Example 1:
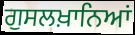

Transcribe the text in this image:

ਗੁਸਲਖ਼ਾਨਿਆਂ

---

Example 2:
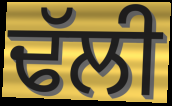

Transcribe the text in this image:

ਢੱਲੀ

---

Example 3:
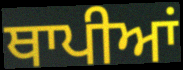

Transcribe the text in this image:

ਥਾਪੀਆਂ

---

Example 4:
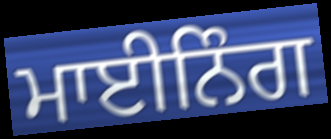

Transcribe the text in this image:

ਮਾਈਨਿੰਗ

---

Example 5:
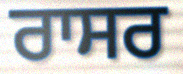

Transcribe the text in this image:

ਰਾਸਰ